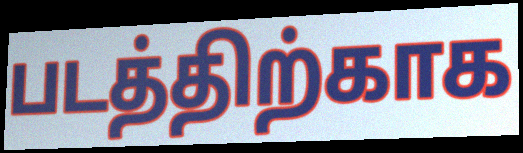
படத்திற்காக